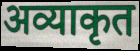
अव्याकृत